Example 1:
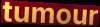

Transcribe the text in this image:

tumour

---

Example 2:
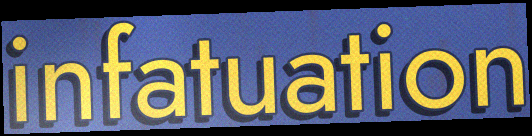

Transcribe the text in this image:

infatuation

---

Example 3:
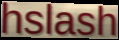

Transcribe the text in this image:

hslash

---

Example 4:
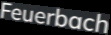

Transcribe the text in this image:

Feuerbach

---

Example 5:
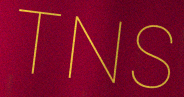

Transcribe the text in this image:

TNS